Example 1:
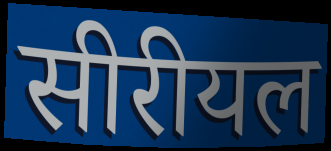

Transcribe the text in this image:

सीरीयल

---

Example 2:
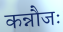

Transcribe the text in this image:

कन्नौजः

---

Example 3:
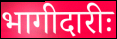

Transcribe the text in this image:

भागीदारीः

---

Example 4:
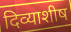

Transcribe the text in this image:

दिव्याशीष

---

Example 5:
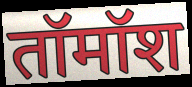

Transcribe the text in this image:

तॉमॉश